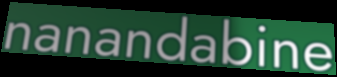
nanandabine